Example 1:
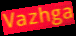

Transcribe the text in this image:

Vazhga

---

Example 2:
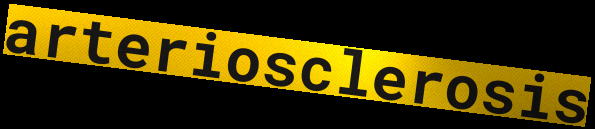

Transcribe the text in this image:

arteriosclerosis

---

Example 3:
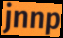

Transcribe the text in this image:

jnnp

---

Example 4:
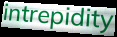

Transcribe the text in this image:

intrepidity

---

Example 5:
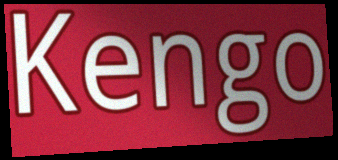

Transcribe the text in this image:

Kengo